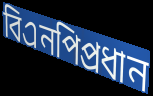
বিএনপিপ্রধান